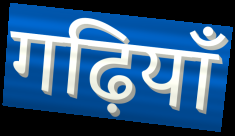
गढ़ियाँ